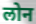
लोन